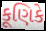
કૂણિકે